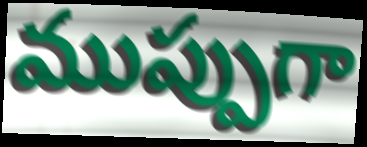
ముప్పుగా